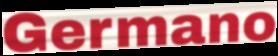
Germano